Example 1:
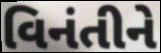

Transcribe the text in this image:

વિનંતીને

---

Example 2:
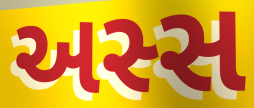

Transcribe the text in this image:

અસ્સ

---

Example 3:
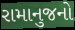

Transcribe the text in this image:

રામાનુજનો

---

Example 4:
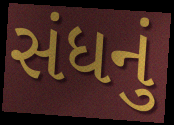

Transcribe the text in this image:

સંધનું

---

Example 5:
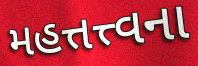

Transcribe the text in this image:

મહત્તત્ત્વના